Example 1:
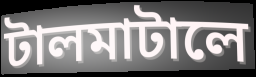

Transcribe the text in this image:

টালমাটালে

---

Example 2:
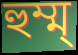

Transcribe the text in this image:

হুম্ম্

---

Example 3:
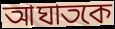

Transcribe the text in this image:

আঘাতকে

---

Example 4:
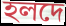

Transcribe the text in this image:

হলদে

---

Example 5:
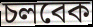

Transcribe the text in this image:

চলবেক